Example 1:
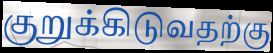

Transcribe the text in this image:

குறுக்கிடுவதற்கு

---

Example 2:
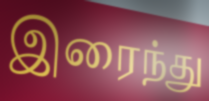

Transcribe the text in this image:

இரைந்து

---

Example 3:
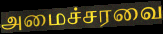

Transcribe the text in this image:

அமைச்சரவை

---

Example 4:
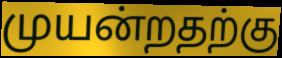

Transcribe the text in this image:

முயன்றதற்கு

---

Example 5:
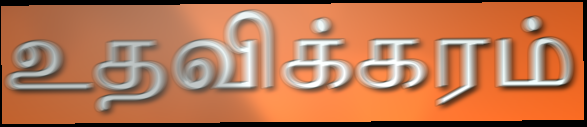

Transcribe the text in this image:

உதவிக்கரம்